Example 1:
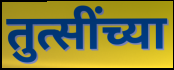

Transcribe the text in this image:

तुत्सींच्या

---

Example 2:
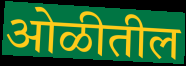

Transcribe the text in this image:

ओळीतील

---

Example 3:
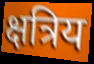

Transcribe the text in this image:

क्षत्रिय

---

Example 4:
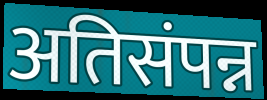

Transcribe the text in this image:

अतिसंपन्न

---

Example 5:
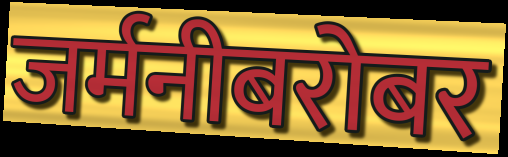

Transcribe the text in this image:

जर्मनीबरोबर